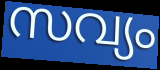
സവ്യം